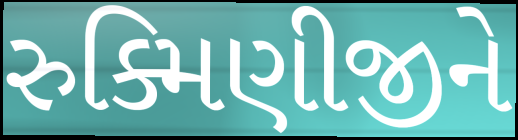
રુક્મિણીજીને